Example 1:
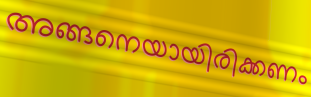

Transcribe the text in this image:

അങ്ങനെയായിരിക്കണം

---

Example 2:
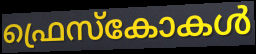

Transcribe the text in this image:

ഫ്രെസ്കോകൾ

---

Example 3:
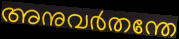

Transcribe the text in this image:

അനുവർതന്തേ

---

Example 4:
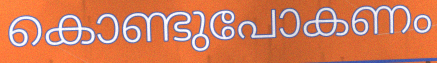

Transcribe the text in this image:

കൊണ്ടുപോകണം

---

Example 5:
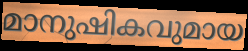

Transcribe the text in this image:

മാനുഷികവുമായ